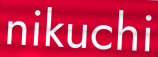
nikuchi